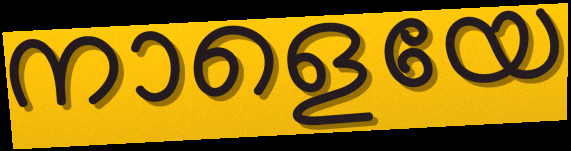
നാളെയേ